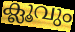
ക്ലൂവും